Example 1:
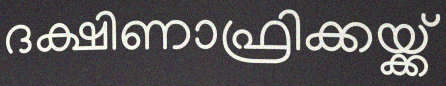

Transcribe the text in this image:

ദക്ഷിണാഫ്രിക്കയ്ക്ക്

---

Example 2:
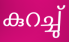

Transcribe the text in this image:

കുറച്ചു്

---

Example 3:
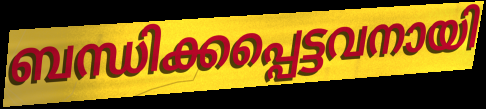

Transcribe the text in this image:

ബന്ധിക്കപ്പെട്ടവനായി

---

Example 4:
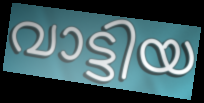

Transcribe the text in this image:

വാട്ടിയ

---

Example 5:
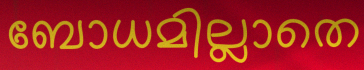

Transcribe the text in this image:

ബോധമില്ലാതെ